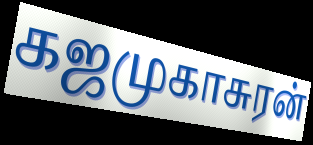
கஜமுகாசுரன்